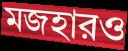
মজহারও